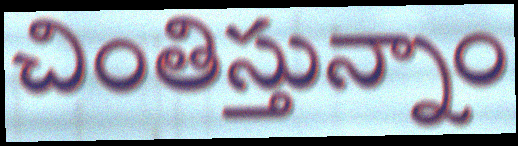
చింతిస్తున్నాం